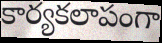
కార్యకలాపంగా